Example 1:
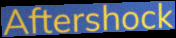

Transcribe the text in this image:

Aftershock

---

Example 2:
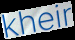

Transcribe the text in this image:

kheir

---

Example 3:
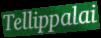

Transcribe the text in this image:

Tellippalai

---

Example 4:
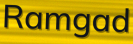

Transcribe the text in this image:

Ramgad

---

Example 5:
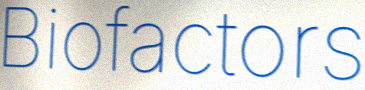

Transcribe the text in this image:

Biofactors